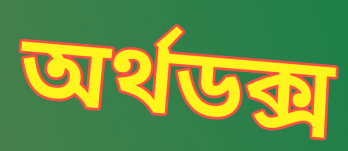
অর্থডক্স